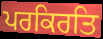
ਪਰਕਿਰਤਿ